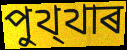
পুথ্থাৰ